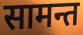
सामन्त